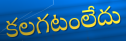
కలగటంలేదు